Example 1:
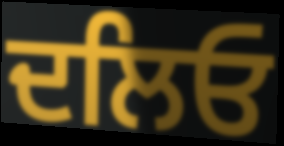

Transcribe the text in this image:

ਦਲਿਓ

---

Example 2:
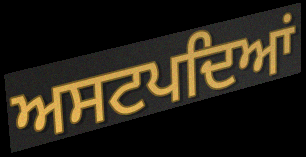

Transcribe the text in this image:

ਅਸਟਪਦਿਆਂ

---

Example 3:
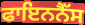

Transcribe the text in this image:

ਫਾਇਨਨੈੱਸ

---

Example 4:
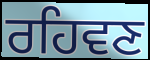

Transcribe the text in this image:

ਰਹਿਵਣ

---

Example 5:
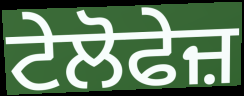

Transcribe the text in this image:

ਟੇਲੋਫੇਜ਼